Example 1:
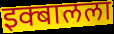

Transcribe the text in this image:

इक्बालला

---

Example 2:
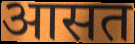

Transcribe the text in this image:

आसत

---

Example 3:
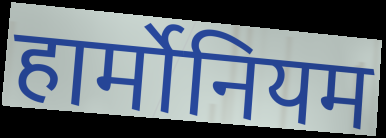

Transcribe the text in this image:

हार्मोनियम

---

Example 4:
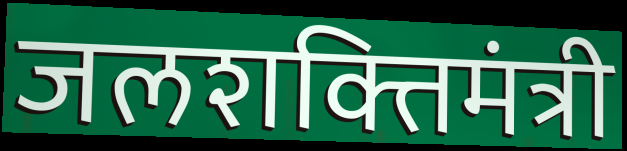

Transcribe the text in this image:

जलशक्तिमंत्री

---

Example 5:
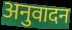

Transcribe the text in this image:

अनुवादन